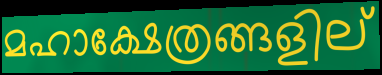
മഹാക്ഷേത്രങ്ങളില്